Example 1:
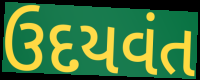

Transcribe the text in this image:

ઉદયવંત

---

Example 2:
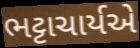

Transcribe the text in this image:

ભટ્ટાચાર્યએ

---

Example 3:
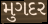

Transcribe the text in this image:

મુગદર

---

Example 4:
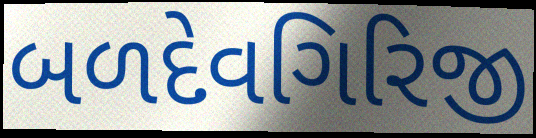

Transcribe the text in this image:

બળદેવગિરિજી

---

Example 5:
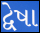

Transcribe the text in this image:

દ્વેષા